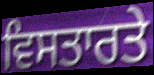
ਵਿਸਤਾਰਤੇ